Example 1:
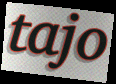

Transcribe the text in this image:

tajo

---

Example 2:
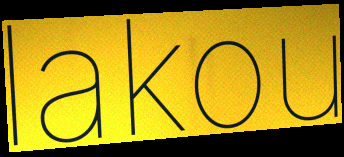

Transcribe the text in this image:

lakou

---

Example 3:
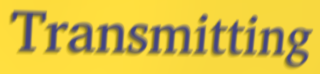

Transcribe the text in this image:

Transmitting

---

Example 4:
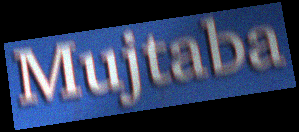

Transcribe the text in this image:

Mujtaba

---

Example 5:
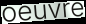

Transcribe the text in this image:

oeuvre